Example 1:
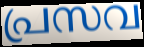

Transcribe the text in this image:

പ്രസവ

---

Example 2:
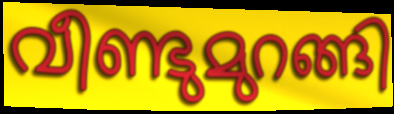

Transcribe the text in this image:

വീണ്ടുമുറങ്ങി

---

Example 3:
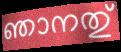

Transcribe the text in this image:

ഞാനതു്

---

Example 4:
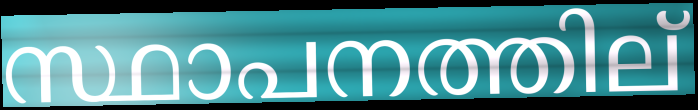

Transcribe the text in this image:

സ്ഥാപനത്തില്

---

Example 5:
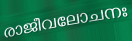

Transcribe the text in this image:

രാജീവലോചനഃ